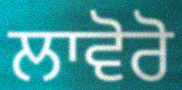
ਲਾਵੋਰੋ